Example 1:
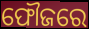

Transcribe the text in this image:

ଫୌଜରେ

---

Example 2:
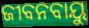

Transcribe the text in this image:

ଜୀବନବାୟୁ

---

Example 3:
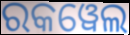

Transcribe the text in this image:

ରକୱେଲ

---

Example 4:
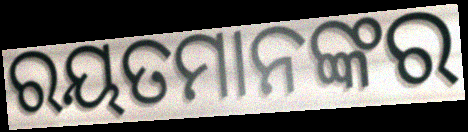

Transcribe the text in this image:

ରୟତମାନଙ୍କର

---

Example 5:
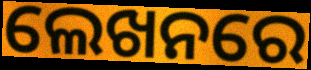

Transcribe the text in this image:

ଲେଖନରେ